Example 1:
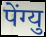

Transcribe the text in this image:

पेंग्यु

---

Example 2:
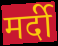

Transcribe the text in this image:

मर्दी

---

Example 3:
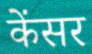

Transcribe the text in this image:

केंसर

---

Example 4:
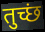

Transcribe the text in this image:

तुच्छं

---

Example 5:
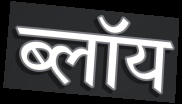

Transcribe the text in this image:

ब्लॉय